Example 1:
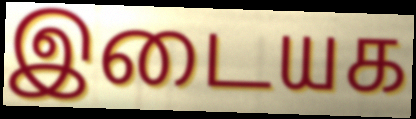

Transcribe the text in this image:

இடையக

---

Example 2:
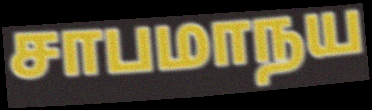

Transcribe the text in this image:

சாபமாநய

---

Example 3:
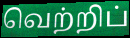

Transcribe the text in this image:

வெற்றிப்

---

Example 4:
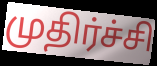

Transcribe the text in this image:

முதிர்ச்சி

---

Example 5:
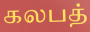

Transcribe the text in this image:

கலபத்